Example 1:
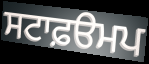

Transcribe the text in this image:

ਸਟਾਫ਼ੳਮਪ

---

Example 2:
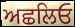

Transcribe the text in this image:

ਅਛਲਿਓ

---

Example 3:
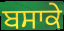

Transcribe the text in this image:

ਬਸਾਕੇ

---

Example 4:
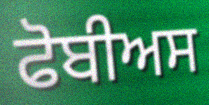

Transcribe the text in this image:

ਫੋਬੀਅਸ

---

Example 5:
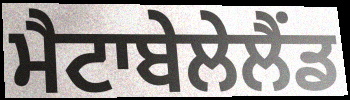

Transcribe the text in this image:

ਮੈਟਾਬੇਲੇਲੈਂਡ